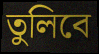
তুলিবে